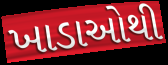
ખાડાઓથી